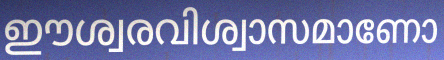
ഈശ്വരവിശ്വാസമാണോ